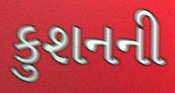
કુશનની